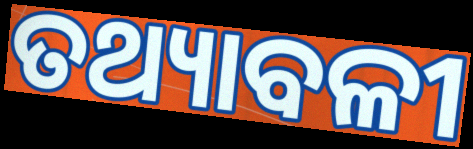
ତଥ୍ୟାବଳୀ